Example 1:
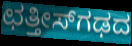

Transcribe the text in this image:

ಛತ್ತೀಸ್‌ಗಢದ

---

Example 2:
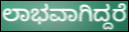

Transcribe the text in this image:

ಲಾಭವಾಗಿದ್ದರೆ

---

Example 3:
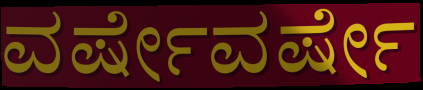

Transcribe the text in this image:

ವರ್ಷೇವರ್ಷೇ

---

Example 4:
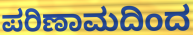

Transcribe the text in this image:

ಪರಿಣಾಮದಿಂದ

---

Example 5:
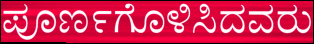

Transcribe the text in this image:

ಪೂರ್ಣಗೊಳಿಸಿದವರು